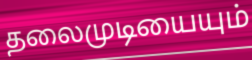
தலைமுடியையும்